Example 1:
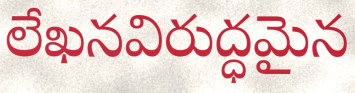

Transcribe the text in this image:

లేఖనవిరుద్ధమైన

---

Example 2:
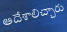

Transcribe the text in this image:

ఆదేశాలిచ్చారు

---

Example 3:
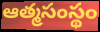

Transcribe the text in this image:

ఆత్మసంస్థం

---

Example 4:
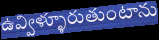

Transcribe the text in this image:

ఉవ్విళ్ళూరుతుంటాను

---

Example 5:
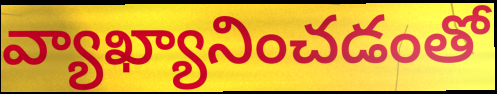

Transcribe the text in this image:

వ్యాఖ్యానించడంతో